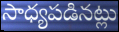
సాధ్యపడినట్లు